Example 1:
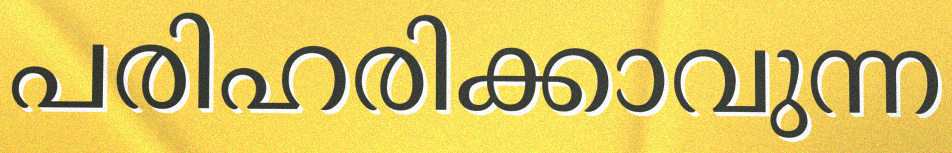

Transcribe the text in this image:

പരിഹരിക്കാവുന്ന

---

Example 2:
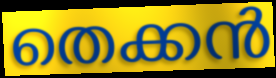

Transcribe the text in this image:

തെക്കൻ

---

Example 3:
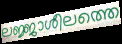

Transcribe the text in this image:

ലജ്ജാശീലത്തെ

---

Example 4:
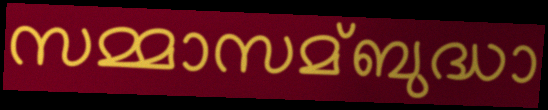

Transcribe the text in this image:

സമ്മാസമ്ബുദ്ധാ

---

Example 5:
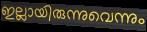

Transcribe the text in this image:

ഇല്ലായിരുന്നുവെന്നും